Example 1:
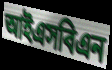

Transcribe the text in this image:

আইএসবিএন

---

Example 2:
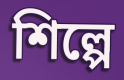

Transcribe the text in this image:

শিল্পে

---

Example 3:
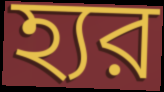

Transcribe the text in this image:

হ্যর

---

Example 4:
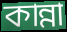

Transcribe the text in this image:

কান্না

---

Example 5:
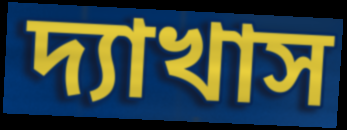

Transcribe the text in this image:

দ্যাখাস